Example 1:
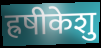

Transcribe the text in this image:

ह्रषीकेशु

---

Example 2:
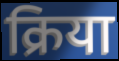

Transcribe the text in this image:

क्रिया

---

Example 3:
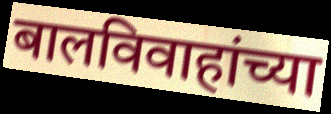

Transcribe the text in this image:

बालविवाहांच्या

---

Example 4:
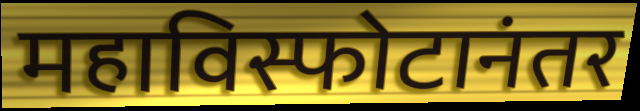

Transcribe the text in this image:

महाविस्फोटानंतर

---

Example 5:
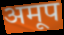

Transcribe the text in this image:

अमूप